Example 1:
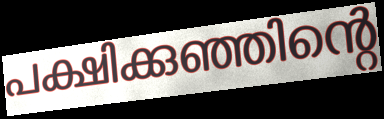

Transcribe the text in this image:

പക്ഷിക്കുഞ്ഞിന്റെ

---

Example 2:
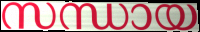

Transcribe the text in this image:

സന്ധായ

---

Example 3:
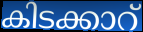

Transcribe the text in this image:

കിടക്കാറ്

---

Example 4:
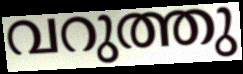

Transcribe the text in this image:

വറുത്തു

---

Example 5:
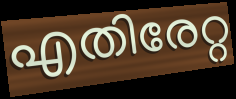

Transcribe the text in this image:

എതിരേറ്റ